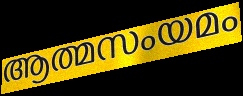
ആത്മസംയമം